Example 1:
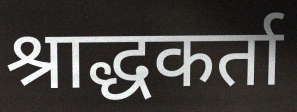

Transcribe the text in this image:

श्राद्धकर्ता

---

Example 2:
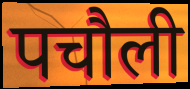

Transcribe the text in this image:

पचौली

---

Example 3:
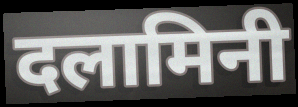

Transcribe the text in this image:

दलामिनी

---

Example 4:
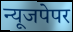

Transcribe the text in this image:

न्‍यूजपेपर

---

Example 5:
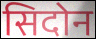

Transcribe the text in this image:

सिदोन